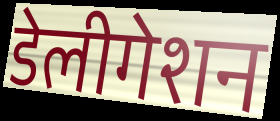
डेलीगेशन